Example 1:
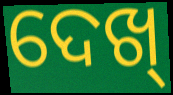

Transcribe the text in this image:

ଦେଖ୍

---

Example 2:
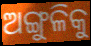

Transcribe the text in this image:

ଅଙ୍ଗୁଳିକୁ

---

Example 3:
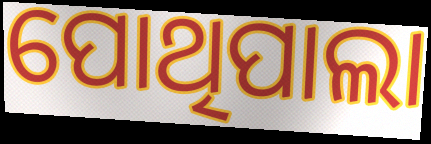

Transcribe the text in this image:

ପୋଥିପାଲା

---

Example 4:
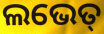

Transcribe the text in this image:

ଲଭେତ୍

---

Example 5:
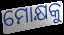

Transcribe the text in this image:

ମୋକ୍ଷକୁ